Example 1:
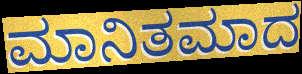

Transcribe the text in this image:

ಮಾನಿತಮಾದ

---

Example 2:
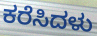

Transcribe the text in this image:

ಕರೆಸಿದಳು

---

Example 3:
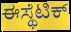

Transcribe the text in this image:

ಈಸ್ಥೆಟಿಕ್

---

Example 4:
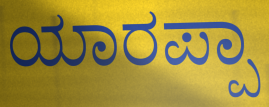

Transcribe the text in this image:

ಯಾರಪ್ಪಾ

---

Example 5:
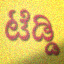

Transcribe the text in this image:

ಟೆಡ್ಡಿ